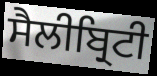
ਸੈਲੀਬ੍ਰਿਟੀ